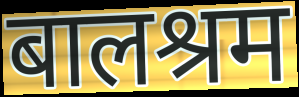
बालश्रम